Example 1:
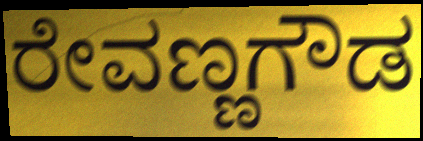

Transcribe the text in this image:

ರೇವಣ್ಣಗೌಡ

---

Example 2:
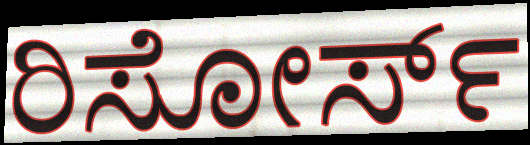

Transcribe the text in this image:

ರಿಸೋರ್ಸ್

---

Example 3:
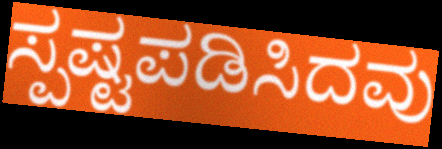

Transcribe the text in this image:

ಸ್ಪಷ್ಟಪಡಿಸಿದವು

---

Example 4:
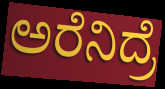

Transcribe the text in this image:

ಅರೆನಿದ್ರೆ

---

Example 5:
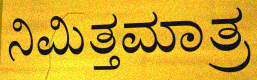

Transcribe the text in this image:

ನಿಮಿತ್ತಮಾತ್ರ